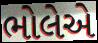
ભોલેએ